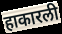
हाकारली